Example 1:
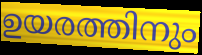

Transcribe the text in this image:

ഉയരത്തിനും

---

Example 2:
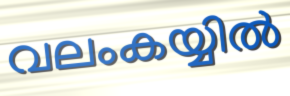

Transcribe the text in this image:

വലംകയ്യിൽ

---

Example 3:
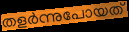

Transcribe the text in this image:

തളർന്നുപോയത്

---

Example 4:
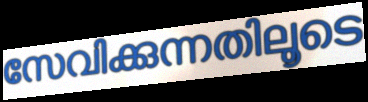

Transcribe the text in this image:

സേവിക്കുന്നതിലൂടെ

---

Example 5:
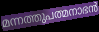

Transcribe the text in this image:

മന്നത്തുപത്മനാഭൻ